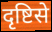
दृष्टिसे